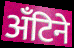
अँटिने